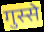
गुस्से